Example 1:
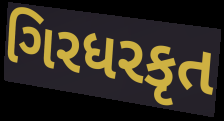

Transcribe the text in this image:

ગિરધરકૃત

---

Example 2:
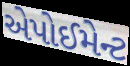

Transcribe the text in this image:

એપોઈમેન્ટ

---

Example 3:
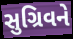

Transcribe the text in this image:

સુગ્રિવને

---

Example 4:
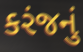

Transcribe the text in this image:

કરંજનું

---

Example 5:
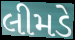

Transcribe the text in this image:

લીમડે